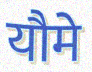
यौमे